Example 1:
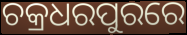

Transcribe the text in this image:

ଚକ୍ରଧରପୁରରେ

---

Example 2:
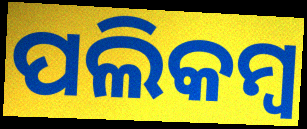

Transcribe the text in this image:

ପଲିକମ୍ବ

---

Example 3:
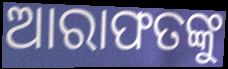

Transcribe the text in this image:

ଆରାଫତଙ୍କୁ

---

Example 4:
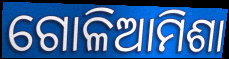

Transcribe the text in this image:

ଗୋଳିଆମିଶା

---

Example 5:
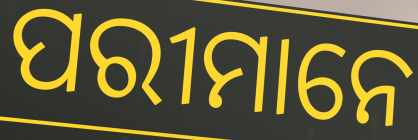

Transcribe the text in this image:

ପରୀମାନେ